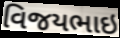
વિજયભાઇ